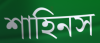
শাহিনস